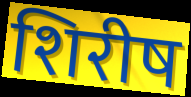
शिरीष